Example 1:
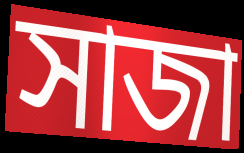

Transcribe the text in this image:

সাজা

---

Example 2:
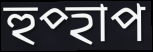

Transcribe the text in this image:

হুপ্হাপ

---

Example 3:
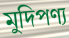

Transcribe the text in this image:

মুদিপণ্য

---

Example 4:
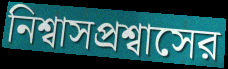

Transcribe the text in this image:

নিশ্বাসপ্রশ্বাসের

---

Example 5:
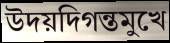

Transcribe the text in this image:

উদয়দিগন্তমুখে